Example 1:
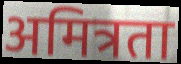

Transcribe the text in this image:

अमित्रता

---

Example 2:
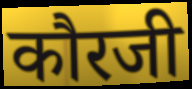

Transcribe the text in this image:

कौरजी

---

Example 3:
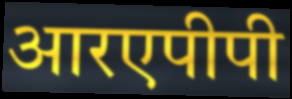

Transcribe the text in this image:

आरएपीपी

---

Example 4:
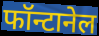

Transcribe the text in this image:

फॉन्टानेल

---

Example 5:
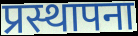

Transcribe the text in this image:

प्रस्थापना